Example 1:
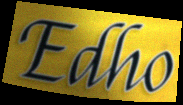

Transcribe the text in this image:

Edho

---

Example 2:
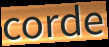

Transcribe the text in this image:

corde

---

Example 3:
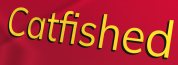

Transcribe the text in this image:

Catfished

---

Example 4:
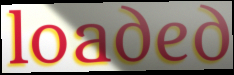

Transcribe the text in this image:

loaded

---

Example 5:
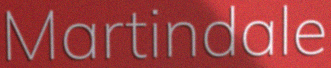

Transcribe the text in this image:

Martindale